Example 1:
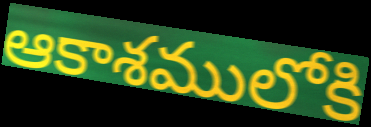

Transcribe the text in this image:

ఆకాశములోకి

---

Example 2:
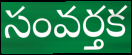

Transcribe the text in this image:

సంవర్తక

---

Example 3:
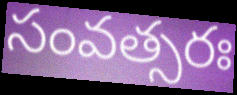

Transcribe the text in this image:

సంవత్సరః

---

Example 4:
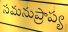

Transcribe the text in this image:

సమనుప్రాప్య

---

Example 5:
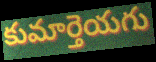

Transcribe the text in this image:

కుమార్తెయగు